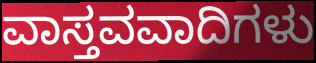
ವಾಸ್ತವವಾದಿಗಳು